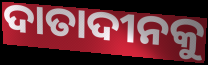
ଦାତାଦୀନକୁ